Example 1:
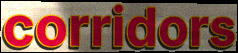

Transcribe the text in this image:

corridors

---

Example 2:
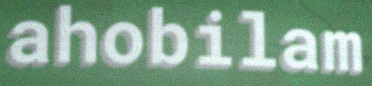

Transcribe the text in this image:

ahobilam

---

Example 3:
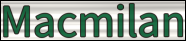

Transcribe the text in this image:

Macmilan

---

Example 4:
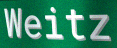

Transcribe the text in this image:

Weitz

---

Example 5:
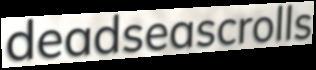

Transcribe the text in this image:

deadseascrolls